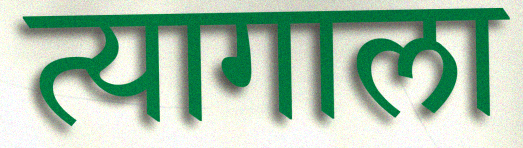
त्यागाला